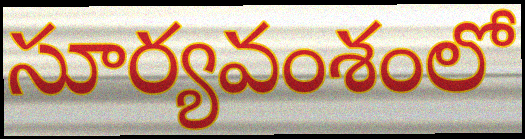
సూర్యవంశంలో